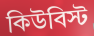
কিউবিস্ট